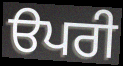
ੳਪਰੀ